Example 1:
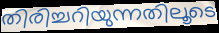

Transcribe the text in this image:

തിരിച്ചറിയുന്നതിലൂടെ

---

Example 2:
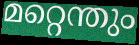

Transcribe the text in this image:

മറ്റെന്തും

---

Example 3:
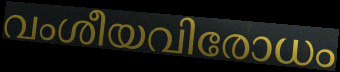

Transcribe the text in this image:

വംശീയവിരോധം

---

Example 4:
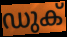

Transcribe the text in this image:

ഡുക്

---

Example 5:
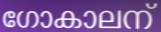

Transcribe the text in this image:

ഗോകാലന്